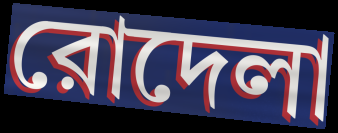
রোদেলা